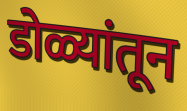
डोळ्यांतून